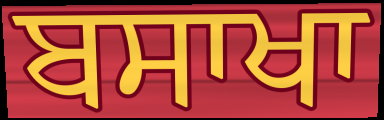
ਬਸਾਖਾ